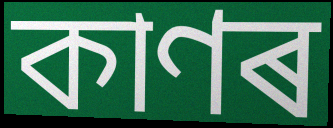
কাণৰ